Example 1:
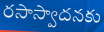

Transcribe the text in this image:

రసాస్వాదనకు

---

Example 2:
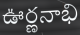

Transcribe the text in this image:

ఊర్ణనాభి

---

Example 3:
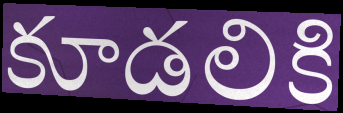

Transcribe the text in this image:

కూడలికి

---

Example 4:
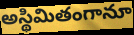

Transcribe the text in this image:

అస్థిమితంగానూ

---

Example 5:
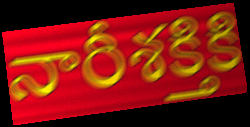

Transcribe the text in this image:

నారీశక్తికి